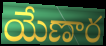
యేణార